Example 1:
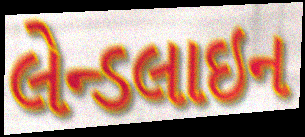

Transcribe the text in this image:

લેન્ડલાઇન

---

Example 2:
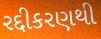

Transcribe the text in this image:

રદ્દીકરણથી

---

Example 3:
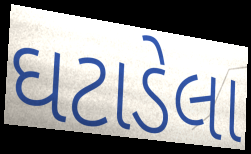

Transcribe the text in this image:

ઘટાડેલા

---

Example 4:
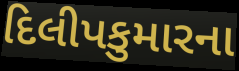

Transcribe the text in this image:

દિલીપકુમારના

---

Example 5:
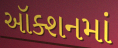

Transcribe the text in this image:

ઑક્શનમાં